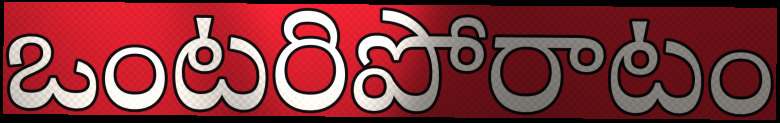
ఒంటరిపోరాటం